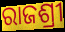
ରାଜଶ୍ରୀ